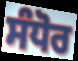
ਸੰਧੋਰ